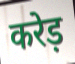
करेड़